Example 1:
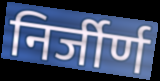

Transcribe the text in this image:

निर्जीर्ण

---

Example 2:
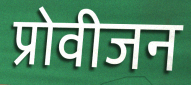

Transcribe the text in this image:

प्रोवीजन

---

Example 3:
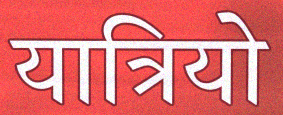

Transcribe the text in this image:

यात्रियो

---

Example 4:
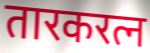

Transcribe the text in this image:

तारकरत्न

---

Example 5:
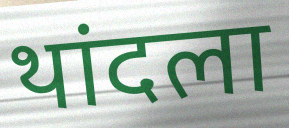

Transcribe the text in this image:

थांदला